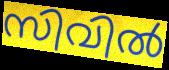
സിവിൽ